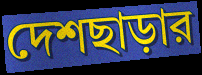
দেশছাড়ার